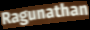
Ragunathan